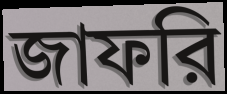
জাফরি